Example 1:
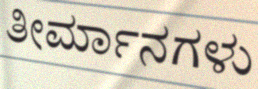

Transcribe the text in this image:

ತೀರ್ಮಾನಗಳು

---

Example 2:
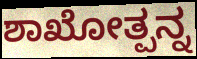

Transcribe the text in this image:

ಶಾಖೋತ್ಪನ್ನ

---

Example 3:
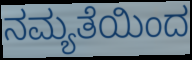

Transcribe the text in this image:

ನಮ್ಯತೆಯಿಂದ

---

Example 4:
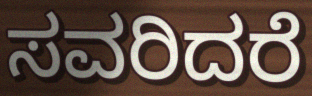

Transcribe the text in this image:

ಸವರಿದರೆ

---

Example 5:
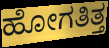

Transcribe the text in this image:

ಹೋಗತಿತ್ತ